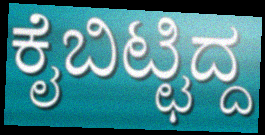
ಕೈಬಿಟ್ಟಿದ್ದ